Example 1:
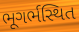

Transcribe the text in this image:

ભૂગર્ભસ્થિત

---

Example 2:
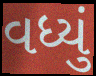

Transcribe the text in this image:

વધ્યું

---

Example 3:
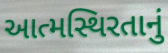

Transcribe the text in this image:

આત્મસ્થિરતાનું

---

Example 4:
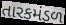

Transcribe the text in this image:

તારકમંડળ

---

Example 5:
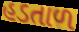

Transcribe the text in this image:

હડતાળ